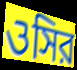
ওসির